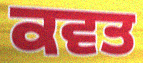
ਕਵਤ